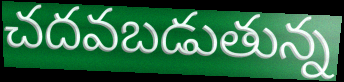
చదవబడుతున్న